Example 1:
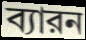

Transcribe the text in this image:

ব্যারন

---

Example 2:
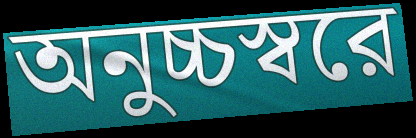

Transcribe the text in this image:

অনুচ্চস্বরে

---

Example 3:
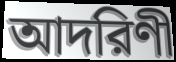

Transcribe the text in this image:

আদরিণী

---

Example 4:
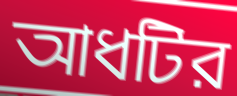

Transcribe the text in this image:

আধটির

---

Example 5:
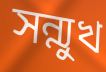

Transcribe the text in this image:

সন্মুখ